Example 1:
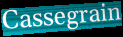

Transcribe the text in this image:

Cassegrain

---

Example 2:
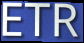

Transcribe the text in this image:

ETR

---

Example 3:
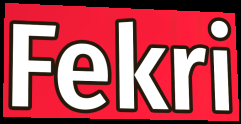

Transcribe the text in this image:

Fekri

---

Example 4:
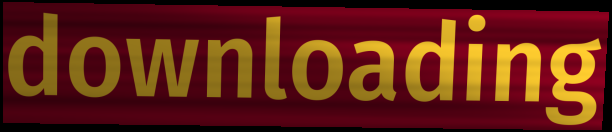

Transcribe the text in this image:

downloading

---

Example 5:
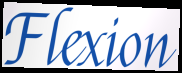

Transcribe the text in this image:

Flexion